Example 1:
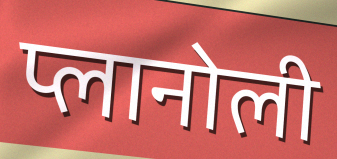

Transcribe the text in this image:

प्लानोली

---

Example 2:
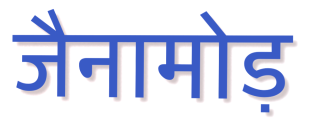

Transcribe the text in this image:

जैनामोड़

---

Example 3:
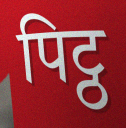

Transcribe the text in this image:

पिट्ठ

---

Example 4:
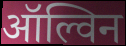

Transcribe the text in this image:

ऑल्विन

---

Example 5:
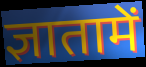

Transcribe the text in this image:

ज्ञातामें